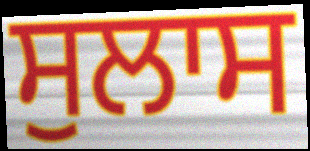
ਸੁਲਾਸ